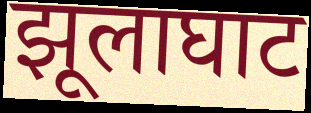
झूलाघाट